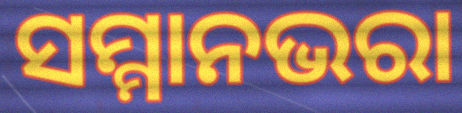
ସମ୍ମାନଭରା